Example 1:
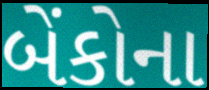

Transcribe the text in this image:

બેંકોના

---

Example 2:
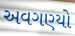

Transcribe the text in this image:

અવગણ્યો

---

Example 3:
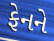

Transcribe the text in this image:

ફેનને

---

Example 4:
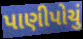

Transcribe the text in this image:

પાણીપોચું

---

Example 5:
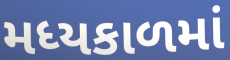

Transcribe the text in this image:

મધ્યકાળમાં